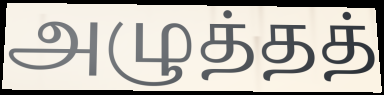
அழுத்தத்